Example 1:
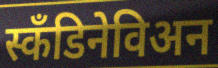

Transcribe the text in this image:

स्कॅंडिनेविअन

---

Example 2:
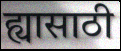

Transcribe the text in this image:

ह्यासाठी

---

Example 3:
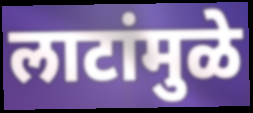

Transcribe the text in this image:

लाटांमुळे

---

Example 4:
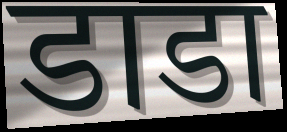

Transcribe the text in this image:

डाडा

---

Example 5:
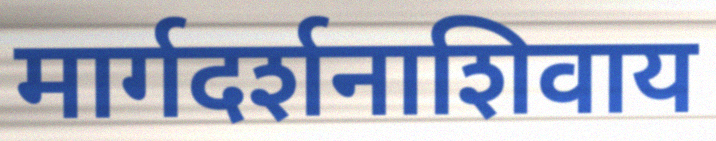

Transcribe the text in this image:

मार्गदर्शनाशिवाय